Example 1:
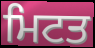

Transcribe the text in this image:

ਮਿਟਤ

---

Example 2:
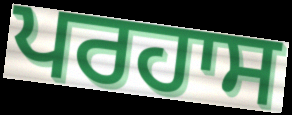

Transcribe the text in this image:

ਪਰਹਾਸ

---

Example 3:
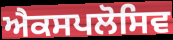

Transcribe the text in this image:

ਐਕਸਪਲੋਸਿਵ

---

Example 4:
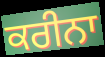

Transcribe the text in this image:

ਕਰੀਨਾ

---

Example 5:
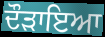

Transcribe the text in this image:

ਦੌੜਾਇਆ